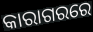
କାରାଗରରେ